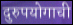
दुरुपयोगाची